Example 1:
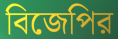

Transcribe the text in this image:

বিজেপির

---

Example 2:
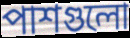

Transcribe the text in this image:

পাশগুলো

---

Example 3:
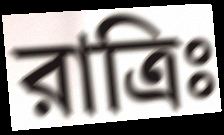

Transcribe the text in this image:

রাত্রিঃ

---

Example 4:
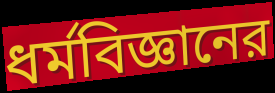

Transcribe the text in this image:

ধর্মবিজ্ঞানের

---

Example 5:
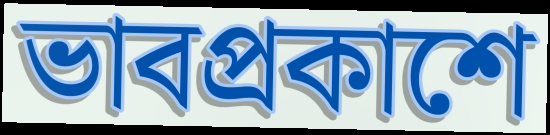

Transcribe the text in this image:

ভাবপ্রকাশে